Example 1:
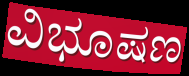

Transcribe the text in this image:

ವಿಭೂಷಣ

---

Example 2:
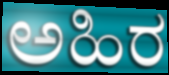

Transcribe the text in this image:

ಅಹಿರ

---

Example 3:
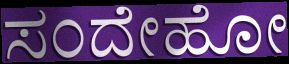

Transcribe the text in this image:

ಸಂದೇಹೋ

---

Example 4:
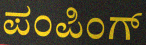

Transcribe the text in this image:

ಪಂಪಿಂಗ್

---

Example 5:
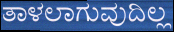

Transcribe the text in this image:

ತಾಳಲಾಗುವುದಿಲ್ಲ